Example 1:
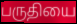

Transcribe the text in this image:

பருதியை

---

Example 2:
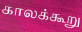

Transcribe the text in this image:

காலக்கூறு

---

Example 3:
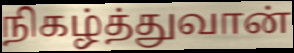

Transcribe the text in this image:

நிகழ்த்துவான்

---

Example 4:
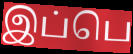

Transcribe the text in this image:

இப்பெ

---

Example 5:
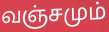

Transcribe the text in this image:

வஞ்சமும்